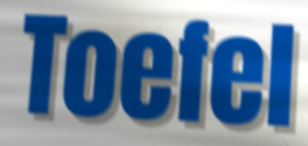
Toefel